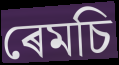
ৰেমচি